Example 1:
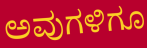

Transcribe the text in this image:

ಅವುಗಳಿಗೂ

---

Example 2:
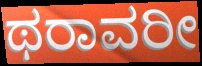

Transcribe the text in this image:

ಥರಾವರೀ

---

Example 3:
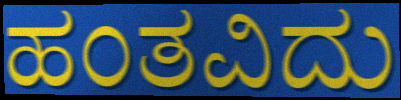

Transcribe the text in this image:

ಹಂತವಿದು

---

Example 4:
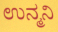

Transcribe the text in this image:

ಉನ್ಮನಿ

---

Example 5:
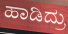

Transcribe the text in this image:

ಹಾಡಿದ್ರು